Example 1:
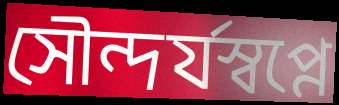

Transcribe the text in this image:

সৌন্দর্যস্বপ্নে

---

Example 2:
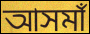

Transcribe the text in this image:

আসমাঁ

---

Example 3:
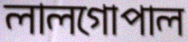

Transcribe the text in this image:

লালগোপাল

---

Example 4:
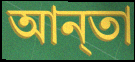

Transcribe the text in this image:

আন্‌তা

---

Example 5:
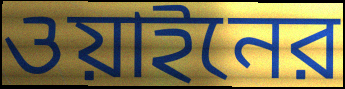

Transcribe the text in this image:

ওয়াইনের